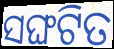
ସଙ୍ଘଟିତ